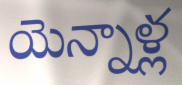
యెన్నాళ్ల